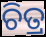
ଚିତ୍ର